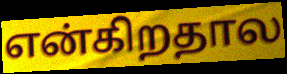
என்கிறதால